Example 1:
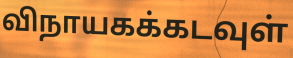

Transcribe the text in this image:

விநாயகக்கடவுள்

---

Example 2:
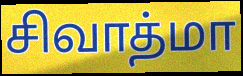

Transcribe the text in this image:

சிவாத்மா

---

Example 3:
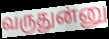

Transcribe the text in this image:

வருதுன்னு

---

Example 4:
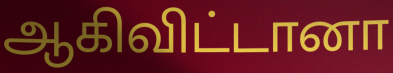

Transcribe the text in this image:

ஆகிவிட்டானா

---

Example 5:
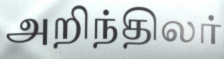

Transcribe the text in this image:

அறிந்திலர்